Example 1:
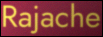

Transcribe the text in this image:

Rajache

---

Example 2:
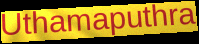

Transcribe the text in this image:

Uthamaputhra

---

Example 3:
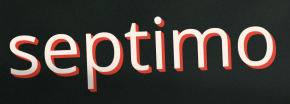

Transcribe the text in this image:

septimo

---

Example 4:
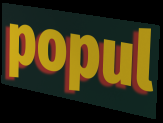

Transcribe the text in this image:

popul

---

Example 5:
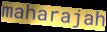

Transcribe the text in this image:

maharajah